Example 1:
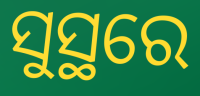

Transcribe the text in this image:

ସୁସ୍ଥରେ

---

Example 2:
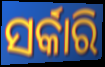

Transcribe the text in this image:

ସର୍କାରି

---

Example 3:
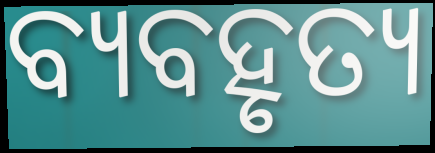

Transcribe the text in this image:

ବ୍ୟବହୃତ୍ୟ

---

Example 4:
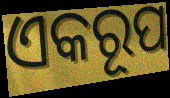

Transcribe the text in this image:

ଏକରୂପ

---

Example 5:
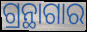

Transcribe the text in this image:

ଗ୍ରନ୍ଥାଗାର